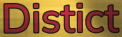
Distict